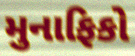
મુનાફિકો